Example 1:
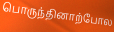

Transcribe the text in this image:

பொருந்தினாற்போல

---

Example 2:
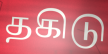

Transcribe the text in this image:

தகிடு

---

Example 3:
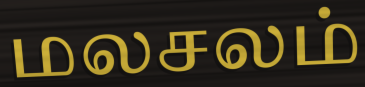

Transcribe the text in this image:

மலசலம்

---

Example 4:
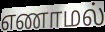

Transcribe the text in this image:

எணாமல்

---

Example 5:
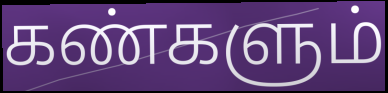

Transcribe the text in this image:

கண்களும்